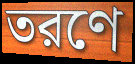
তরণে